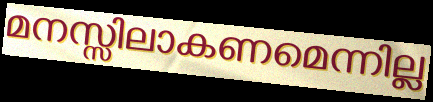
മനസ്സിലാകണമെന്നില്ല